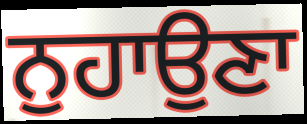
ਨੁਹਾਉਣਾ